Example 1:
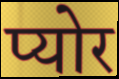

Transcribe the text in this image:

प्योर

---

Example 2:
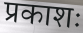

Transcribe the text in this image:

प्रकाशः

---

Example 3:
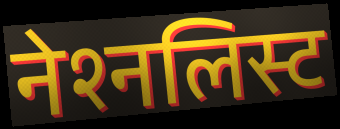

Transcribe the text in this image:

नेश्नलिस्ट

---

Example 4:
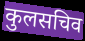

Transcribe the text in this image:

कुलसचिव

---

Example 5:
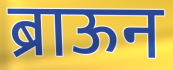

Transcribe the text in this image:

ब्राऊन